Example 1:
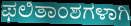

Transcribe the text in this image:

ಫಲಿತಾಂಶಗಳಾಗಿ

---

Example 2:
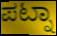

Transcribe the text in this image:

ಪಟ್ನಾ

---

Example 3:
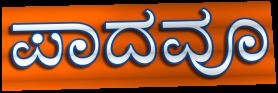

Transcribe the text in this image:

ಪಾದವೂ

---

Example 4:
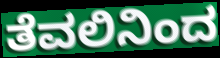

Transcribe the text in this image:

ತೆವಲಿನಿಂದ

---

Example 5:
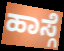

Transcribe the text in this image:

ಹಾಸ್ಗೆ